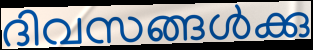
ദിവസങ്ങൾക്കു